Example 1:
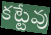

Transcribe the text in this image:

కట్టేవు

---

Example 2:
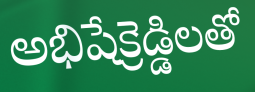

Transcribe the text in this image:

అభిషేక్రెడ్డిలతో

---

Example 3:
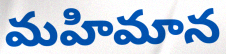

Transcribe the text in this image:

మహిమాన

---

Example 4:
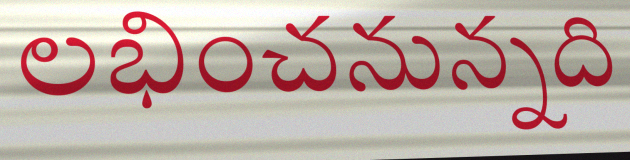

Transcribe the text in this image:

లభించనున్నది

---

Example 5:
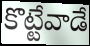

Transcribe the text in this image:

కొట్టేవాడే